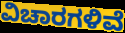
ವಿಚಾರಗಳಿವೆ